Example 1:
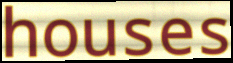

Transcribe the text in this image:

houses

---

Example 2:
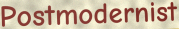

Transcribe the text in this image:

Postmodernist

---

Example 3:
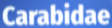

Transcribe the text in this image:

Carabidae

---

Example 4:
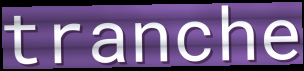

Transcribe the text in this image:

tranche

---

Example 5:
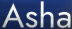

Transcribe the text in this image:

Asha